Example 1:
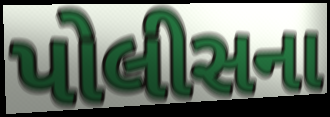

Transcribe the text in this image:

પોલીસના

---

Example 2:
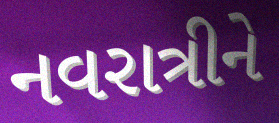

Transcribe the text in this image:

નવરાત્રીને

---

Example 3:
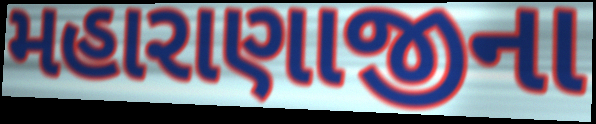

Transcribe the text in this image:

મહારાણાજીના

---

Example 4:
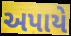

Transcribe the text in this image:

અપાયે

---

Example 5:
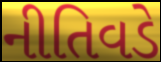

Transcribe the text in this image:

નીતિવડે